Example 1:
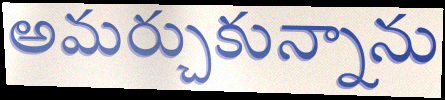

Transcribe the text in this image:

అమర్చుకున్నాను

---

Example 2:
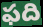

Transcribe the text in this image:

ఫది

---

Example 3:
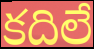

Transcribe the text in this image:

కదిలే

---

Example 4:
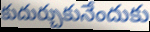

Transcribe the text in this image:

కుదుర్చుకునేందుకు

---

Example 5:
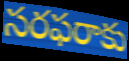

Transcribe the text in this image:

సరఫరాకు